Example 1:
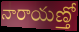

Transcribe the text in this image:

నారాయణ్తో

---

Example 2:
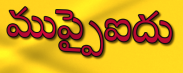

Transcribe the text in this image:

ముప్పైఐదు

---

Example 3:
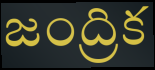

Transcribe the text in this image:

జంద్రిక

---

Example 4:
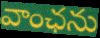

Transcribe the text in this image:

వాంఛను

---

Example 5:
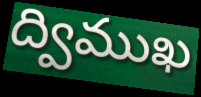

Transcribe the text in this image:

ద్విముఖ